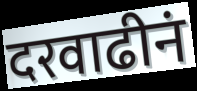
दरवाढीनं